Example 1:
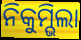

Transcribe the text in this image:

ନିକୁମ୍ଭିଲା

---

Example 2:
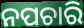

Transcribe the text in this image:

ନପଚାରି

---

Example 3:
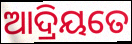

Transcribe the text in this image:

ଆଦ୍ରିୟତେ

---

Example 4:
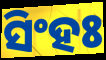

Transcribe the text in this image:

ସିଂହଃ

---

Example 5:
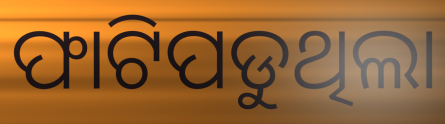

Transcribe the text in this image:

ଫାଟିପଡୁଥିଲା